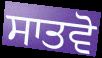
ਸਾਤਵੋ